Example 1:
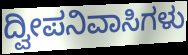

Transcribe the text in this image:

ದ್ವೀಪನಿವಾಸಿಗಳು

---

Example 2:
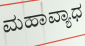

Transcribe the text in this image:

ಮಹಾವ್ಯಾಧ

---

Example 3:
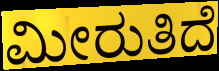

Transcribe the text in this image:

ಮೀರುತಿದೆ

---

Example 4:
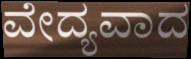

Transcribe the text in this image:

ವೇದ್ಯವಾದ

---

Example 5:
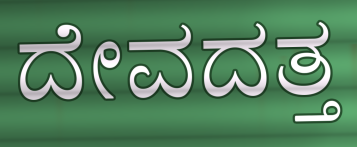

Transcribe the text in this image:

ದೇವದತ್ತ